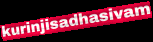
kurinjisadhasivam